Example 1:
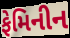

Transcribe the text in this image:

ફેમિનીન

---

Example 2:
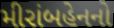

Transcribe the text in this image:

મીરાંબહેનનો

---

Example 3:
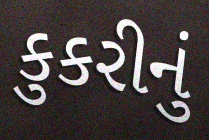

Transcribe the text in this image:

કુકરીનું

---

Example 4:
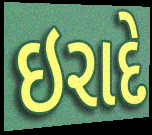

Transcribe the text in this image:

ઇરાદે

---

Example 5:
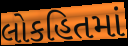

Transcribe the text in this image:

લોકહિતમાં